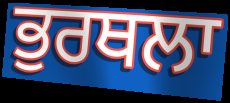
ਭੁਰਥਲਾ